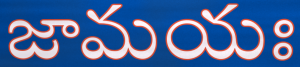
జామయః